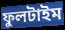
ফুলটাইম